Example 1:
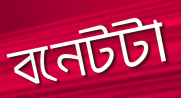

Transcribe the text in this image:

বনেটটা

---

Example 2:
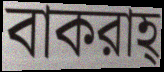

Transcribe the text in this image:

বাকরাহ্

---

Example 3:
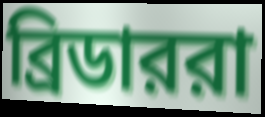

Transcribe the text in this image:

ব্রিডাররা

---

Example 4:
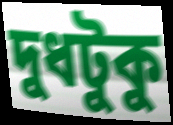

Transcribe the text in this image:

দুধটুকু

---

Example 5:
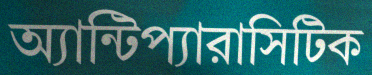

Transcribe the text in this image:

অ্যান্টিপ্যারাসিটিক